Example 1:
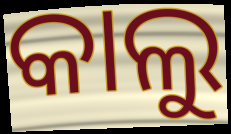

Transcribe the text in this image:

କାଲୁ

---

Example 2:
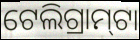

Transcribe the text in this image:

ଟେଲିଗ୍ରାମ୍‍ଟା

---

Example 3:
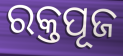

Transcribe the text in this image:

ରକ୍ତପୂଜ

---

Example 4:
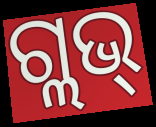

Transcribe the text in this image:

ଗ୍ଲଭ୍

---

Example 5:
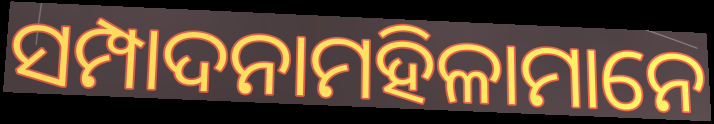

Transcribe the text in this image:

ସମ୍ପାଦନାମହିଳାମାନେ